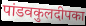
पांडवकुलदीपका